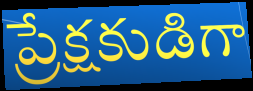
ప్రేక్షకుడిగా